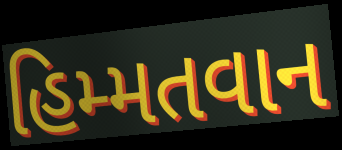
હિમ્મતવાન